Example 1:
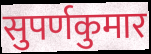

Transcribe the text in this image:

सुपर्णकुमार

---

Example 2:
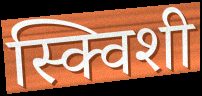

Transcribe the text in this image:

स्क्विशी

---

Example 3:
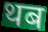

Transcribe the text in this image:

थब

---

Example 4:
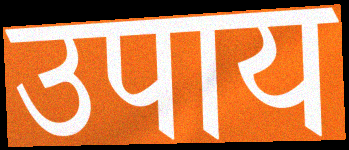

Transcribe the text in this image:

उपाय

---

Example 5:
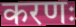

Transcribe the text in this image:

करणः